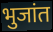
भुजांत